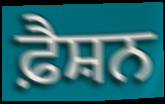
ਫ਼ੈਸ਼ਨ